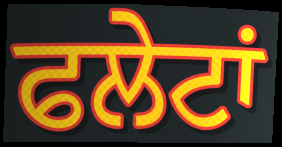
ਫਲੇਟਾਂ